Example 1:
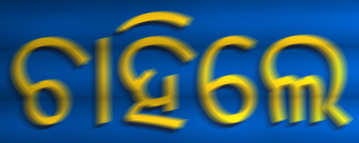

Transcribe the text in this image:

ଚାହିଲେ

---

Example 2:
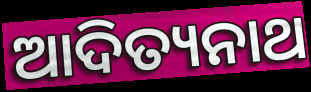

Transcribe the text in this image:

ଆଦିତ୍ୟନାଥ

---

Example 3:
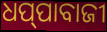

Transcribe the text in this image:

ଧପ୍‌ପାବାଜୀ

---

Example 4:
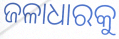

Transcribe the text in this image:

ଜଳାଧାରକୁ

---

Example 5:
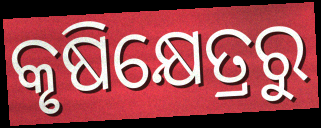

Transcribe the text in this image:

କୃଷିକ୍ଷେତ୍ରରୁ